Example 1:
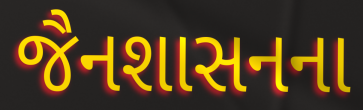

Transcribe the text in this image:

જૈનશાસનના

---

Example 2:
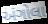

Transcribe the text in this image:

અંગોલા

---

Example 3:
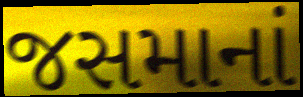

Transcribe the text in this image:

જસમાનાં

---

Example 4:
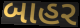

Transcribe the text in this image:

બાહર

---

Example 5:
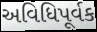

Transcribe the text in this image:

અવિધિપૂર્વક